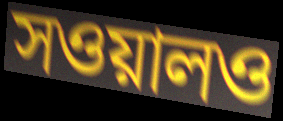
সওয়ালও